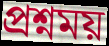
প্রশ্নময়